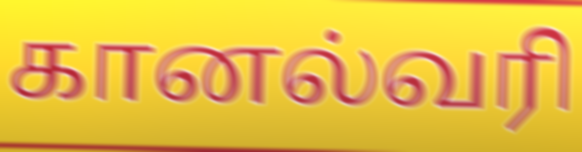
கானல்வரி